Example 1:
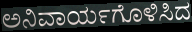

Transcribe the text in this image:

ಅನಿವಾರ್ಯಗೊಳಿಸಿದ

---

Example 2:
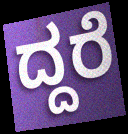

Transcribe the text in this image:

ದ್ದರೆ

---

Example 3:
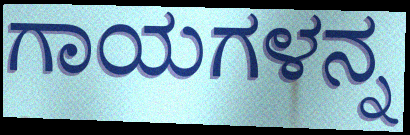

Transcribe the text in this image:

ಗಾಯಗಳನ್ನ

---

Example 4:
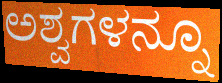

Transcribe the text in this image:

ಅಶ್ವಗಳನ್ನೂ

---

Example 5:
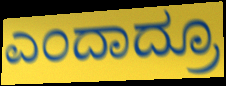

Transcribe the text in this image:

ಎಂದಾದ್ರೂ